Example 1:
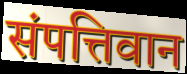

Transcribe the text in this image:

संपत्तिवान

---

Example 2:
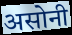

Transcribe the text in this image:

असोनी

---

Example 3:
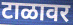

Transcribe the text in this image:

टाळावर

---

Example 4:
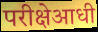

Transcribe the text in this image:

परीक्षेआधी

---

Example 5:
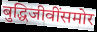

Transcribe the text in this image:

बुद्धिजीवींसमोर